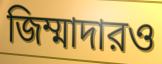
জিম্মাদারও